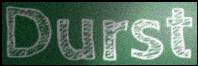
Durst